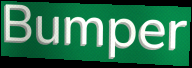
Bumper